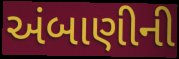
અંબાણીની